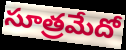
సూత్రమేదో